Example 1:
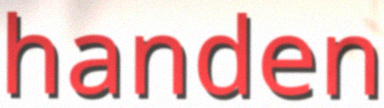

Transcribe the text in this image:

handen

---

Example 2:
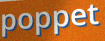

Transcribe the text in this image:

poppet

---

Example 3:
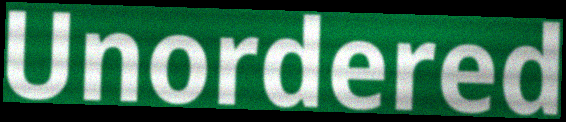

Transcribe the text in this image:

Unordered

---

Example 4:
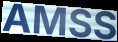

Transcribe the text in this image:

AMSS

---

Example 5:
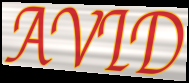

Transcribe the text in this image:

AVID